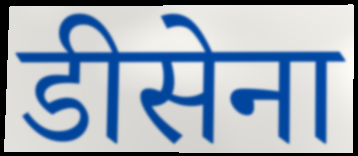
डीसेना